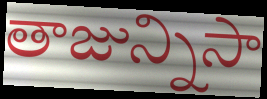
తాజున్నిసా